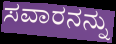
ಸವಾರನನ್ನು